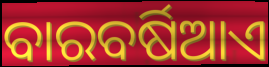
ବାରବର୍ଷିଆଏ